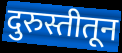
दुरुस्तीतून